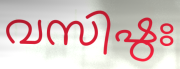
വസിഷ്ഠഃ